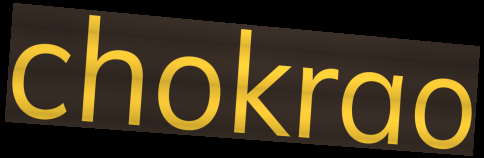
chokrao